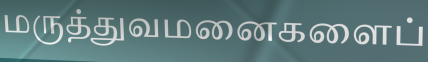
மருத்துவமனைகளைப்